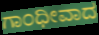
ಗಾಂಧೀವಾದ